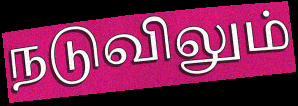
நடுவிலும்